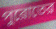
পুরোতের